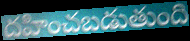
దహించబడుతుంది